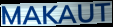
MAKAUT